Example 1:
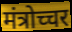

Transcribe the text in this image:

मंत्रोच्चर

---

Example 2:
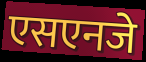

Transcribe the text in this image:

एसएनजे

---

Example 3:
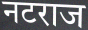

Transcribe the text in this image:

नटराज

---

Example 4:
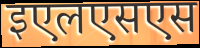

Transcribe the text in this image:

इएलएसएस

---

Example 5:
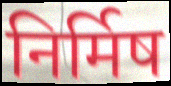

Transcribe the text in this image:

निर्मिष